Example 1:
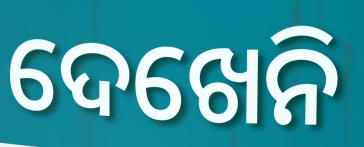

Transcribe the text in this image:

ଦେଖେନି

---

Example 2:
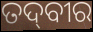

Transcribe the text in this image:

ତଦ୍‌ବୀର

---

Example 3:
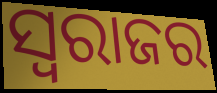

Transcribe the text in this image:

ସ୍ବରାଜର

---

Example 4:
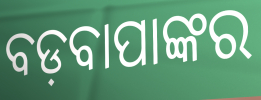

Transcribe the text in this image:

ବଡ଼ବାପାଙ୍କର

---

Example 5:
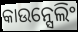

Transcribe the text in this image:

କାଉନ୍ସେଲିଂ